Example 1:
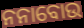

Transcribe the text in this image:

ନନାବୋଉ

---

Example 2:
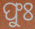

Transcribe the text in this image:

ଫୁଃ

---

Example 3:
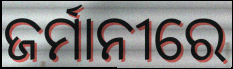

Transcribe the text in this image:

ଜର୍ମାନୀରେ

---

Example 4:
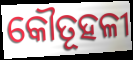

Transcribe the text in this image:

କୌତୂହଳୀ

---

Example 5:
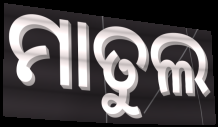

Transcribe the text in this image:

ମାତୁଲ